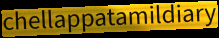
chellappatamildiary